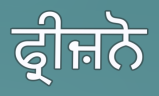
ਫ੍ਰੀਜ਼ਨੋ